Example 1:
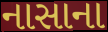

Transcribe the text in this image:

નાસાના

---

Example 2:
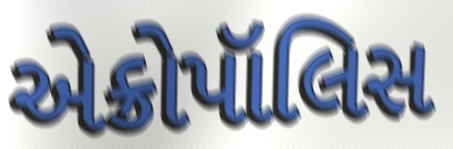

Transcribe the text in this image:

એક્રોપૉલિસ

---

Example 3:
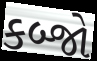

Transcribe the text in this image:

કબ્જો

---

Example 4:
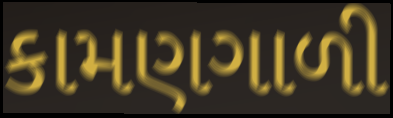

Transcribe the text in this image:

કામણગાળી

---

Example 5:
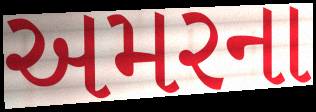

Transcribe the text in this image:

અમરના